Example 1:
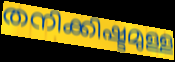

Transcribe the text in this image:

തനിക്കിഷ്ടമുള്ള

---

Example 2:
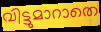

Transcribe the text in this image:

വിട്ടുമാറാതെ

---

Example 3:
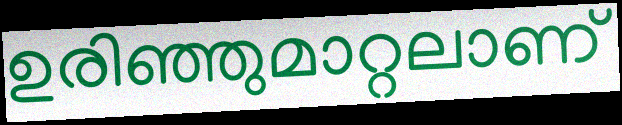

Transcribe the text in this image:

ഉരിഞ്ഞുമാറ്റലാണ്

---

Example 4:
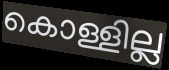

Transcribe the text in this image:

കൊള്ളില്ല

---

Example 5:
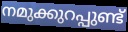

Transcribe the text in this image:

നമുക്കുറപ്പുണ്ട്